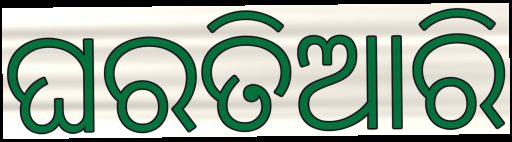
ଘରତିଆରି